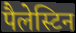
पैलेस्टिन